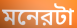
মনেরটা